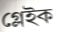
গ্লেইক